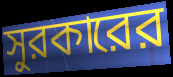
সুরকারের